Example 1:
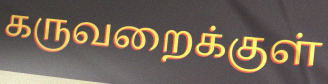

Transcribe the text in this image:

கருவறைக்குள்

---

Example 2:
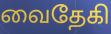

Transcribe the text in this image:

வைதேகி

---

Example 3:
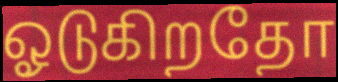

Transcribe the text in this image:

ஓடுகிறதோ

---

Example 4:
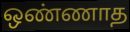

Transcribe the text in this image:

ஒண்ணாத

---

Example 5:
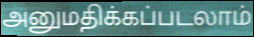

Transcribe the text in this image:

அனுமதிக்கப்படலாம்